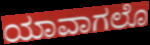
ಯಾವಾಗಲೊ